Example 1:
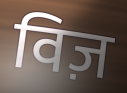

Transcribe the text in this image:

विज़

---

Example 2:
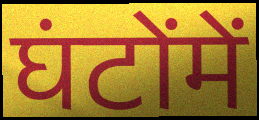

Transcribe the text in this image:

घंटोंमें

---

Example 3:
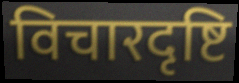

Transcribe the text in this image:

विचारदृष्टि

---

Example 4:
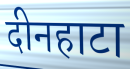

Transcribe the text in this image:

दीनहाटा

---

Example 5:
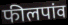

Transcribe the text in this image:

फीलपांव